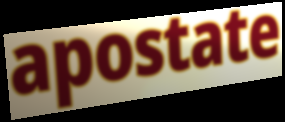
apostate